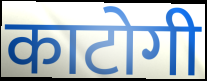
काटोगी